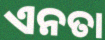
ଏନତା